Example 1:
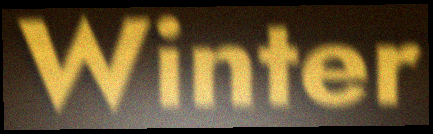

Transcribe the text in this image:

Winter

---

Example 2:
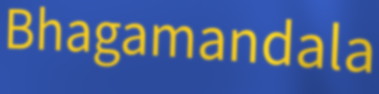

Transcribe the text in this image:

Bhagamandala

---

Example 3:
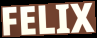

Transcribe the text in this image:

FELIX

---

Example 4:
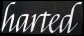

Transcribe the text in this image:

harted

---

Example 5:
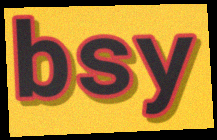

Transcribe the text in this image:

bsy